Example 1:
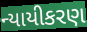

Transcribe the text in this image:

ન્યાયીકરણ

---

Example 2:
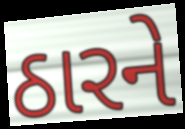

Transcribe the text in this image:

ઠારને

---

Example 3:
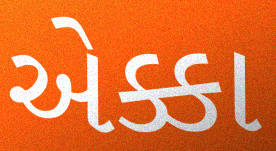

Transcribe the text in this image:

એક્કા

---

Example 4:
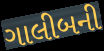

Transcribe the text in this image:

ગાલીબની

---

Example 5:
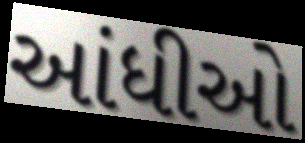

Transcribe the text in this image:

આંધીઓ